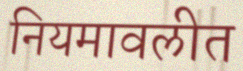
नियमावलीत